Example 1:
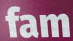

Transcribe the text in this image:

fam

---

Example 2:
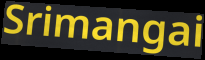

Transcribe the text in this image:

Srimangai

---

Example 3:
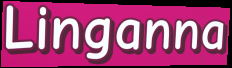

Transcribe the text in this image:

Linganna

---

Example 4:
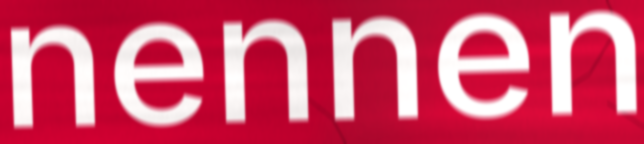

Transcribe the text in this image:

nennen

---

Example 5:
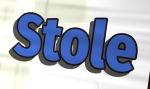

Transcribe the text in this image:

Stole